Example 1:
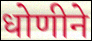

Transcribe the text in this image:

धोणीने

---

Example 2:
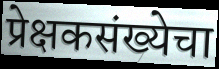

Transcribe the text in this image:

प्रेक्षकसंख्येचा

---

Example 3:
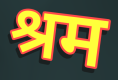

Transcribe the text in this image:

श्रम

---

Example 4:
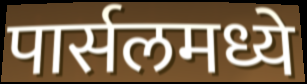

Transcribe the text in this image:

पार्सलमध्ये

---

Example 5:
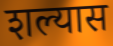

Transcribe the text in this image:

शल्यास